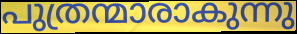
പുത്രന്മാരാകുന്നു